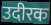
उदीरक